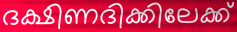
ദക്ഷിണദിക്കിലേക്ക്